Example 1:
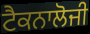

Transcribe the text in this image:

ਟੈਕਨਾਲੋਜੀ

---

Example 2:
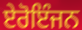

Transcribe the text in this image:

ਏਰੋਇੰਜਨ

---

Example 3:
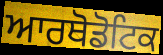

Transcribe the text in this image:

ਆਰਥੋਡੋਟਿਕ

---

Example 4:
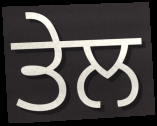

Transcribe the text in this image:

ਤੇਲ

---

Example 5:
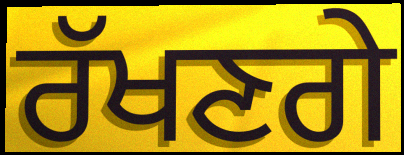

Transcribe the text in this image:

ਰੱਖਣਗੇ